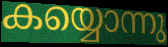
കയ്യൊന്നു